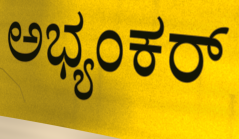
ಅಭ್ಯಂಕರ್